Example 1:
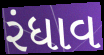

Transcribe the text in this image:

રંધાવ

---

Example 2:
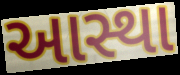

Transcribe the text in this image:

આસ્થા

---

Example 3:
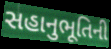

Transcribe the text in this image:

સહાનુભૂતિની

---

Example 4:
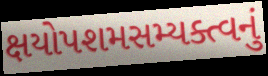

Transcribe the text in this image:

ક્ષયોપશમસમ્યક્ત્વનું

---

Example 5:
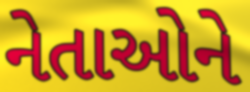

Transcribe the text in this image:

નેતાઓને